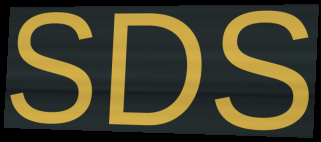
SDS